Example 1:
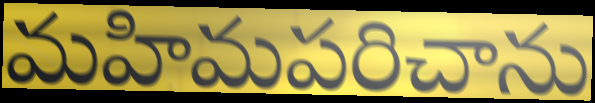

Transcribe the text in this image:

మహిమపరిచాను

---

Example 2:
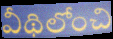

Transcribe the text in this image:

వీథిలోంచి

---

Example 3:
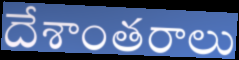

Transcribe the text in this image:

దేశాంతరాలు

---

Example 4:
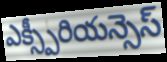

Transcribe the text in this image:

ఎక్స్పీరియన్సెస్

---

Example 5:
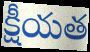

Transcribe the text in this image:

క్షీయత